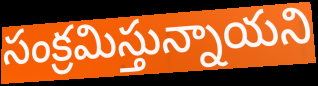
సంక్రమిస్తున్నాయని